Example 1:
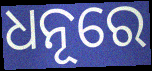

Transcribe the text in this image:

ଧନୂରେ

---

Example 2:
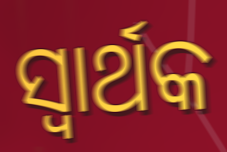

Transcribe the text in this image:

ସ୍ବାର୍ଥକ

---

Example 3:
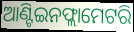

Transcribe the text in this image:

ଆଣ୍ଟିଇନଫ୍ଲାମେଟରି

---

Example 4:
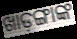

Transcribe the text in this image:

ଖାଡ଼ଙ୍ଗାଙ୍କ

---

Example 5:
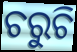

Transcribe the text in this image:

ଚରୁଚି